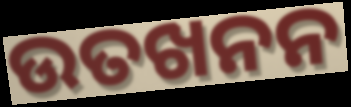
ଉତଖନନ